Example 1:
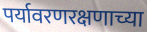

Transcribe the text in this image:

पर्यावरणरक्षणाच्या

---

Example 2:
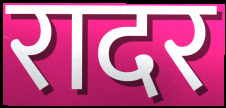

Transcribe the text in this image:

रादर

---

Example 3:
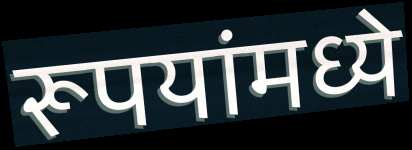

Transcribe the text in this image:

रूपयांमध्ये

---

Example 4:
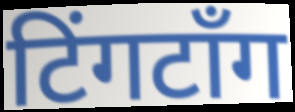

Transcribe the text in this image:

टिंगटॉंग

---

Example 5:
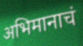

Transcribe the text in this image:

अभिमानाचं